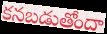
కనబడుతోందా